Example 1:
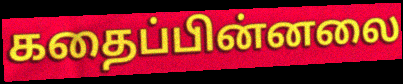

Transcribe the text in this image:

கதைப்பின்னலை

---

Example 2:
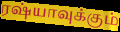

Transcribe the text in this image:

ரஷ்யாவுக்கும்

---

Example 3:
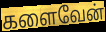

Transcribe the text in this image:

களைவேன்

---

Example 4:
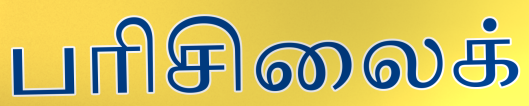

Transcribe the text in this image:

பரிசிலைக்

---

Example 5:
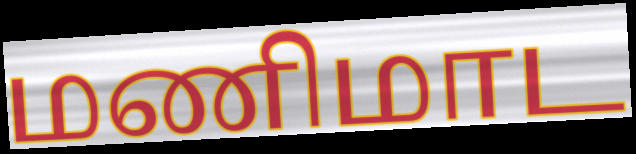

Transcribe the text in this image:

மணிமாட